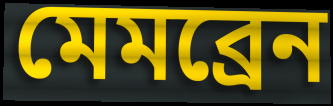
মেমব্ৰেন